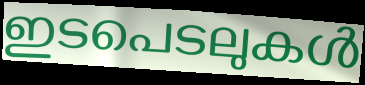
ഇടപെടലുകൾ